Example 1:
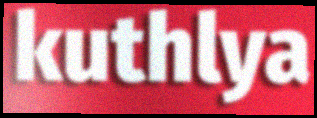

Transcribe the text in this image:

kuthlya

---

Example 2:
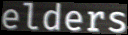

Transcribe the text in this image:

elders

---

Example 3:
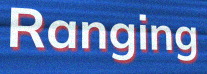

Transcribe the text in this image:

Ranging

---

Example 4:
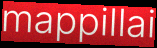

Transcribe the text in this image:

mappillai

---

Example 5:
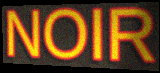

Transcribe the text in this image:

NOIR